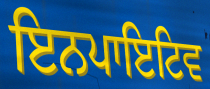
ਇਨਪਾਇਟਿਵ